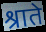
श्राते